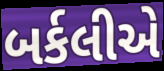
બર્કલીએ